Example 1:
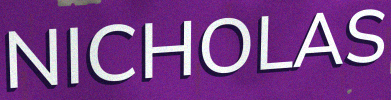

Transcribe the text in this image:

NICHOLAS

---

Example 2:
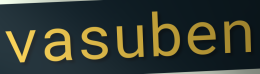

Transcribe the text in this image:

vasuben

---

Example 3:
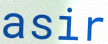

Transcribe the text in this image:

asir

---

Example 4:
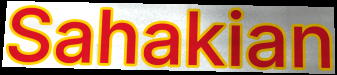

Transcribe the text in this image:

Sahakian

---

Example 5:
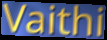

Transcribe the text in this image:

Vaithi